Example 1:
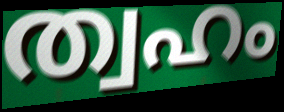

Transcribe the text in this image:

ത്വഹം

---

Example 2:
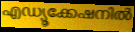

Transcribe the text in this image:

എഡ്യൂക്കേഷനിൽ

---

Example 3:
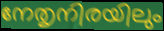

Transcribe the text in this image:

നേതൃനിരയിലും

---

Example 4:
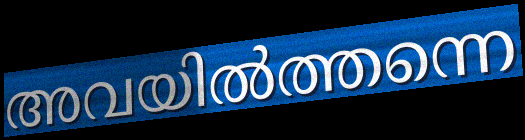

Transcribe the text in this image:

അവയിൽത്തന്നെ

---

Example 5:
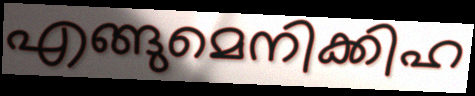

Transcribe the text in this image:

എങ്ങുമെനിക്കിഹ